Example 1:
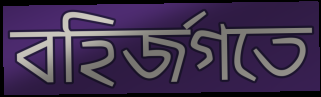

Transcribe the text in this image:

বহির্জগতে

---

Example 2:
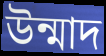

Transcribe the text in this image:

উন্মাদ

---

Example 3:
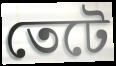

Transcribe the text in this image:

তেটে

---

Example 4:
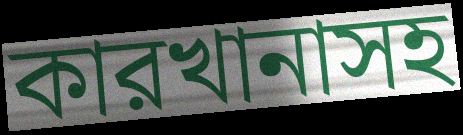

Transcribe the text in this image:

কারখানাসহ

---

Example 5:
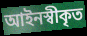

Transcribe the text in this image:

আইনস্বীকৃত